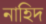
নাহিদ